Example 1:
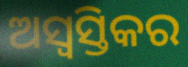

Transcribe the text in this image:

ଅସ୍ୱସ୍ତିକର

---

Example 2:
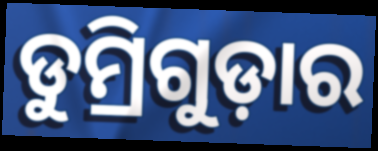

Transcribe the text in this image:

ଡୁମ୍ରିଗୁଡ଼ାର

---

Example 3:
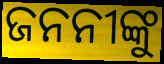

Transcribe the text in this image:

ଜନନୀଙ୍କୁ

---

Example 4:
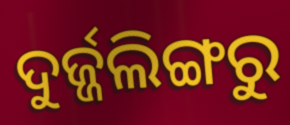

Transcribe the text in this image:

ଦୁର୍ଜ୍ଜଲିଙ୍ଗରୁ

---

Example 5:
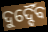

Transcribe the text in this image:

ଦୁର୍ଦ୍ଦୈବ